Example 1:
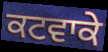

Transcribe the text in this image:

ਕਟਵਾਕੇ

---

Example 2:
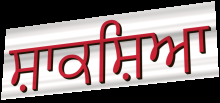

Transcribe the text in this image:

ਸ਼ਾਕਸ਼ਿਆ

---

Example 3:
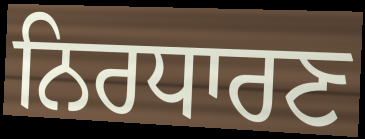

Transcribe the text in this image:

ਨਿਰਧਾਰਣ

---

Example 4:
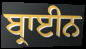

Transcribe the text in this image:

ਬ੍ਰਾਈਨ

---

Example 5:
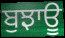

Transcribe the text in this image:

ਬੁਝਾਊ